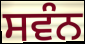
ਸਵੰਨ